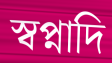
স্বপ্নাদি